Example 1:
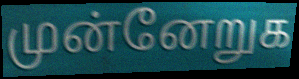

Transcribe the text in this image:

முன்னேறுக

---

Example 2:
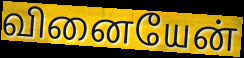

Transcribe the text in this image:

வினையேன்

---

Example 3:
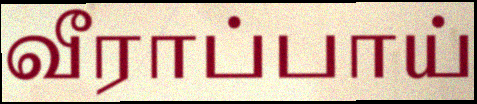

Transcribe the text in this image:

வீராப்பாய்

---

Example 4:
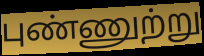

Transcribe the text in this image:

புண்ணுற்று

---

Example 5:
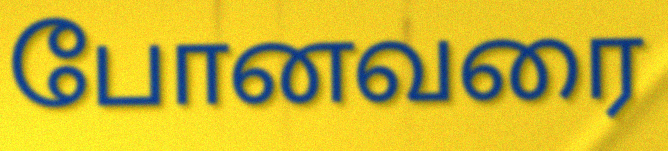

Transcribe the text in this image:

போனவரை